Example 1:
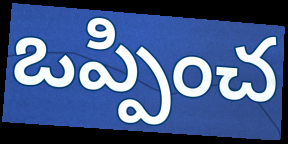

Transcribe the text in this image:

ఒప్పించ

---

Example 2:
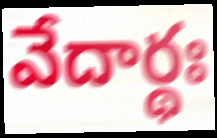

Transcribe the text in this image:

వేదార్థః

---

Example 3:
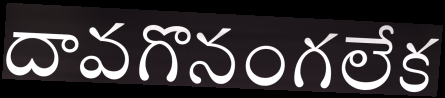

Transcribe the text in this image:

దావగొనంగలేక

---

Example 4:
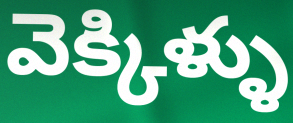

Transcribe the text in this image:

వెక్కిళ్ళు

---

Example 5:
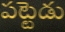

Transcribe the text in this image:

పట్టెడు